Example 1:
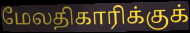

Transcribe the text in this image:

மேலதிகாரிக்குக்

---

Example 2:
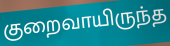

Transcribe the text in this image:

குறைவாயிருந்த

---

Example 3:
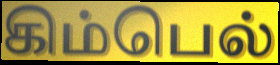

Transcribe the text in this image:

கிம்பெல்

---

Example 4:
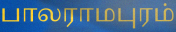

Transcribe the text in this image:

பாலராமபுரம்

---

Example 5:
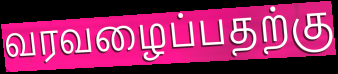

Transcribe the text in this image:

வரவழைப்பதற்கு